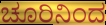
ಚೂರಿನಿಂದ